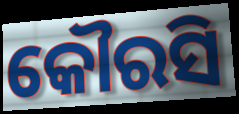
କୌରସି